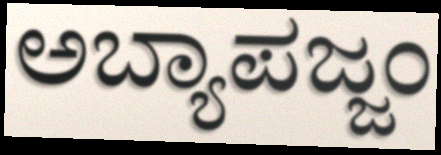
ಅಬ್ಯಾಪಜ್ಜಂ